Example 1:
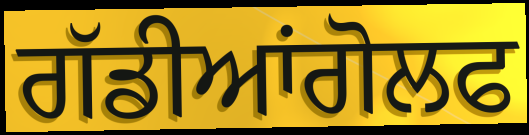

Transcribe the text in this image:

ਗੱਡੀਆਂਗੋਲਫ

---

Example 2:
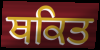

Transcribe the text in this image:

ਥਕਿਤ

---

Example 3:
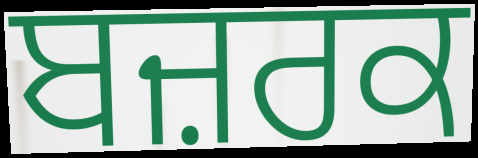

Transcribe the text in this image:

ਬਜ਼ਰਕ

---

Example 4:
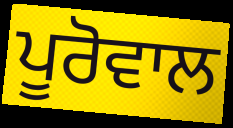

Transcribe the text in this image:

ਪੂਰੋਵਾਲ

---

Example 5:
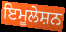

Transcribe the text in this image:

ਇਮੂਲੇਸ਼ਨ